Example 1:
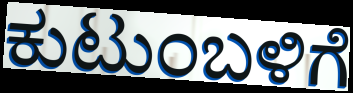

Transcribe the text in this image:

ಕುಟುಂಬಳಿಗೆ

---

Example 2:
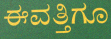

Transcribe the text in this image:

ಈವತ್ತಿಗೂ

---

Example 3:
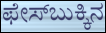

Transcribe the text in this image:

ಫೇಸ್‌ಬುಕ್ಕಿನ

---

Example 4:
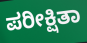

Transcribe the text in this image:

ಪರೀಕ್ಷಿತಾ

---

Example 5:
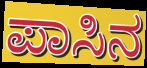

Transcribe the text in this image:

ಪಾಸಿನ